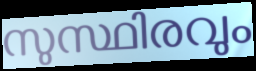
സുസ്ഥിരവും